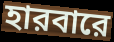
হারবারে